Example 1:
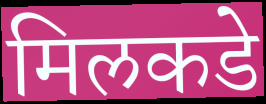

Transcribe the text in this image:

मिलकडे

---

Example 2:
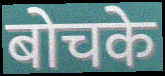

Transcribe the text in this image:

बोचके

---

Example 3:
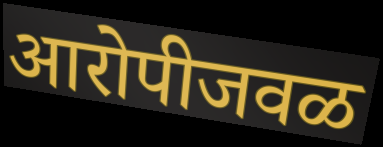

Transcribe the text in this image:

आरोपीजवळ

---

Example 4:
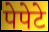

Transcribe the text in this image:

पेपेटे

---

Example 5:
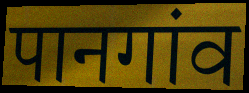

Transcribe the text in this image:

पानगांव